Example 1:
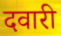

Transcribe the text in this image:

दवारी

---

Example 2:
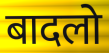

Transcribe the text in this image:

बादलो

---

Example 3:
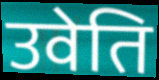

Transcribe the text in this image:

उवेति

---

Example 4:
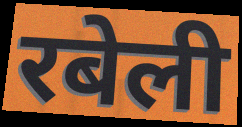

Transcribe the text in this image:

रबेली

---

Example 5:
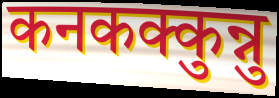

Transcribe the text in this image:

कनकक्कुन्नु